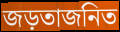
জড়তাজনিত